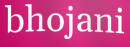
bhojani